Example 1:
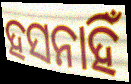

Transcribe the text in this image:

ହସନାହିଁ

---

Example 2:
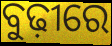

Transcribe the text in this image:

ବୁଢ଼ୀରେ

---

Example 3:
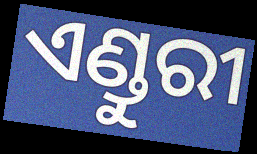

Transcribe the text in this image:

ଏଣ୍ଡୁରୀ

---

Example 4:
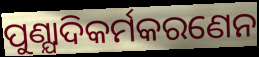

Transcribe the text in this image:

ପୁଣ୍ଯାଦିକର୍ମକରଣେନ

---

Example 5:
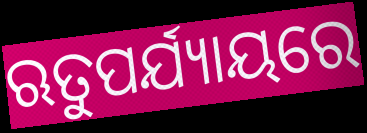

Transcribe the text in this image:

ଋତୁପର୍ଯ୍ୟାୟରେ